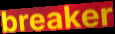
breaker